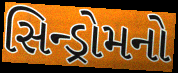
સિન્ડ્રોમનો